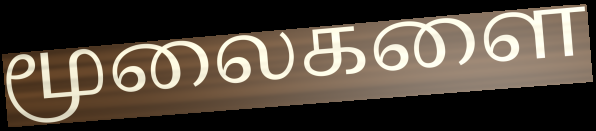
மூலைகளை